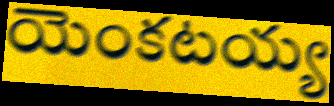
యెంకటయ్య